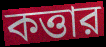
কত্তার